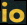
io